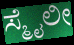
ಸ್ಮೈಲೀ